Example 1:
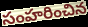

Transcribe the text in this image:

సంహరించిన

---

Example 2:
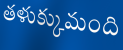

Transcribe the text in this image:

తళుక్కుమంది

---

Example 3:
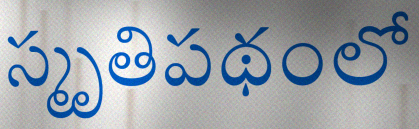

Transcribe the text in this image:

స్మృతిపథంలో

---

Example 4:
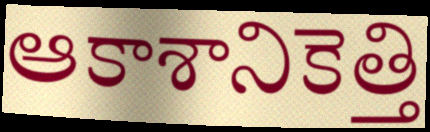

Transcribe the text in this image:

ఆకాశానికెత్తి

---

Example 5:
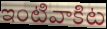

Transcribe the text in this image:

ఇంటివాకిట